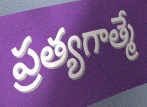
ప్రత్యగాత్మే